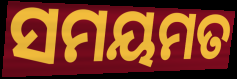
ସମୟମତ